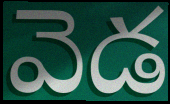
వెడ